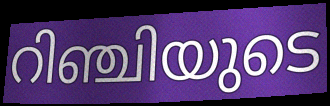
റിഞ്ചിയുടെ